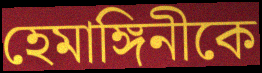
হেমাঙ্গিনীকে